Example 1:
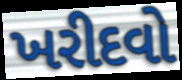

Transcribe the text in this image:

ખરીદવો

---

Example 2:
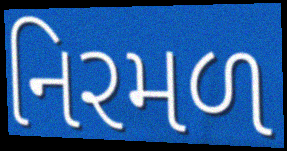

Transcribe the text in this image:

નિરમળ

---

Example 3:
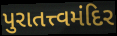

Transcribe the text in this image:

પુરાતત્ત્વમંદિર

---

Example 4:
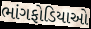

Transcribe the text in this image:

ભાંગફોડિયાઓ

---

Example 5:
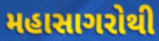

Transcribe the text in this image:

મહાસાગરોથી